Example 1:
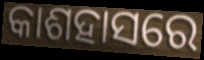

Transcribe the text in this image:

କାଶହାସରେ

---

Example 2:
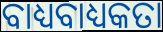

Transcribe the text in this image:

ବାଧ୍ୟବାଧ୍ୟକତା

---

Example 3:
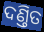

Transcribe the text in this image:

ଦଣ୍ତିତ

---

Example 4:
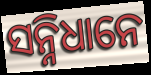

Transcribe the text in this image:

ସନ୍ନିଧାନେ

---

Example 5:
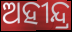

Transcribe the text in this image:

ଅହୀନ୍ଦ୍ର